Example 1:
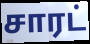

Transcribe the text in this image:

சாரட்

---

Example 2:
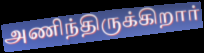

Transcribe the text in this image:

அணிந்திருக்கிறார்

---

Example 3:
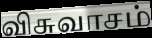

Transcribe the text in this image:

விசுவாசம்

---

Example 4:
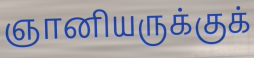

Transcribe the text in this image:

ஞானியருக்குக்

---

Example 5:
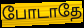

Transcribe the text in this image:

போடாதே